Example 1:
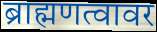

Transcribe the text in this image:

ब्राह्मणत्वावर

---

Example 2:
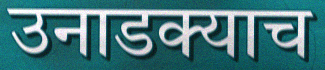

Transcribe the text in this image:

उनाडक्याच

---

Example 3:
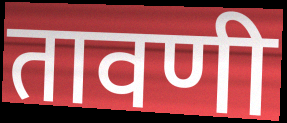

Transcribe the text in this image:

तावणी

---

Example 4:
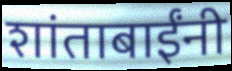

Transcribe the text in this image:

शांताबाईंनी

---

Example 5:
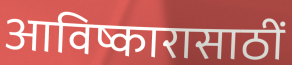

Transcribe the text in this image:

आविष्कारासाठीं